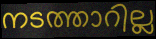
നടത്താറില്ല